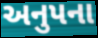
અનુપના